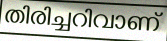
തിരിച്ചറിവാണ്